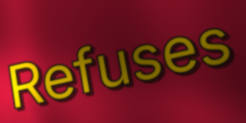
Refuses